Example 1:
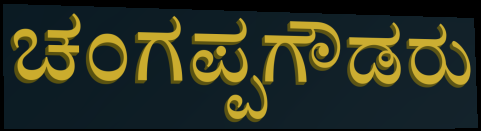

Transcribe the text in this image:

ಚಂಗಪ್ಪಗೌಡರು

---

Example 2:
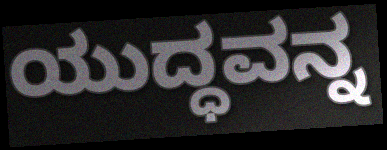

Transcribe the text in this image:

ಯುದ್ಧವನ್ನ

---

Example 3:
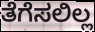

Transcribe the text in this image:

ತೆಗೆಸಲಿಲ್ಲ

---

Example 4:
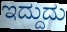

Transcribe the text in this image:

ಇದ್ದುದು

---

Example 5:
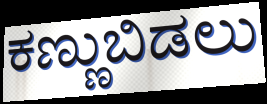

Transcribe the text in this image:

ಕಣ್ಣುಬಿಡಲು